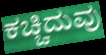
ಕಚ್ಚಿದುವು